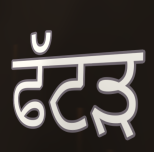
ਫੱਟੜ